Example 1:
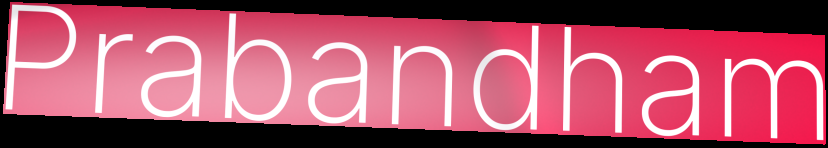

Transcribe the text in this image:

Prabandham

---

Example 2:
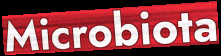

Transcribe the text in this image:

Microbiota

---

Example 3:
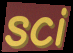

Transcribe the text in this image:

sci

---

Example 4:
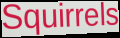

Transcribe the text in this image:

Squirrels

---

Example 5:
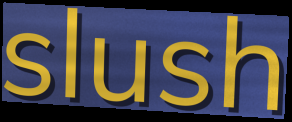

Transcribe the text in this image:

slush